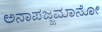
ಅನಾಪಜ್ಜಮಾನೋ